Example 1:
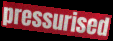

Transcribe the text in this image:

pressurised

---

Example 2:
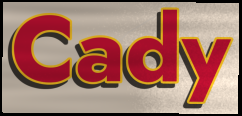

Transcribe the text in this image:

Cady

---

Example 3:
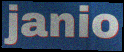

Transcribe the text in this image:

janio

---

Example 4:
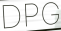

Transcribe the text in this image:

DPG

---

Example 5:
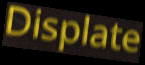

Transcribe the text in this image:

Displate